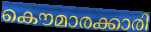
കൌമാരക്കാരി